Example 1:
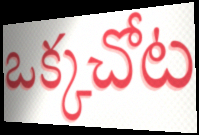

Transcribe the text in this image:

ఒక్కచోట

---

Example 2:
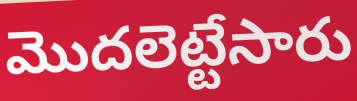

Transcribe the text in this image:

మొదలెట్టేసారు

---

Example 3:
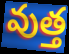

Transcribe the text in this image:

వుత్త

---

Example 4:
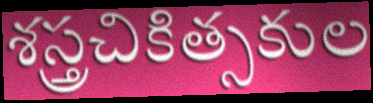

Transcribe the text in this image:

శస్త్రచికిత్సకుల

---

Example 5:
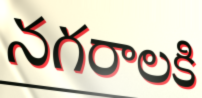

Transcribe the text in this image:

నగరాలకి